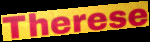
Therese